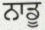
ਨਾਡੂ